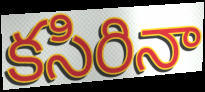
కసిరినా